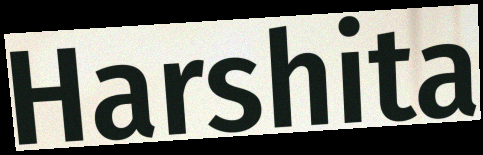
Harshita